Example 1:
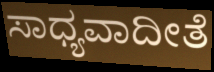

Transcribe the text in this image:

ಸಾಧ್ಯವಾದೀತೆ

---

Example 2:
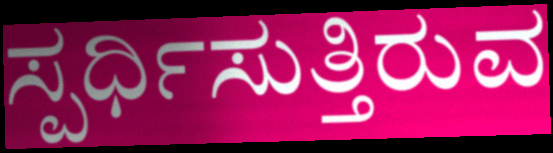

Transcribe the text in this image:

ಸ್ಪರ್ಧಿಸುತ್ತಿರುವ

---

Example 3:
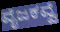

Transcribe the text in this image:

ವೈಜಕವ್ವೆ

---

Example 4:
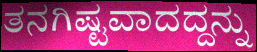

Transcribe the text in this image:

ತನಗಿಷ್ಟವಾದದ್ದನ್ನು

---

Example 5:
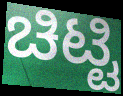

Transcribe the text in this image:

ಚಿಟ್ಟಿ